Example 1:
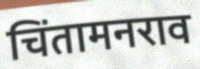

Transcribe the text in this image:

चिंतामनराव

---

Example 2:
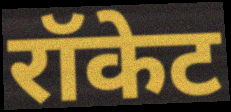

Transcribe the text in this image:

रॉकेट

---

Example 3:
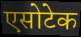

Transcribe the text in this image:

एसोटेक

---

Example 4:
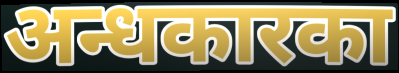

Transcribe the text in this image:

अन्धकारका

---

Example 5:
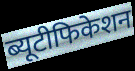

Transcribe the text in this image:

ब्यूटीफिकेशन